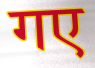
गए